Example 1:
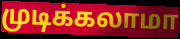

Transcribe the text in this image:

முடிக்கலாமா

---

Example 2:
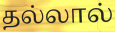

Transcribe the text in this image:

தல்லால்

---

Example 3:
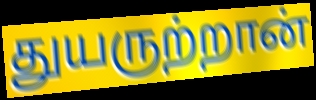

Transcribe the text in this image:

துயருற்றான்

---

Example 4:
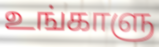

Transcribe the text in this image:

உங்காளு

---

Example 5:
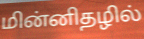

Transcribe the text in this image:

மின்னிதழில்